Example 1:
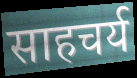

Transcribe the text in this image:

साहचर्य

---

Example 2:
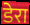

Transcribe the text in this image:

डेरा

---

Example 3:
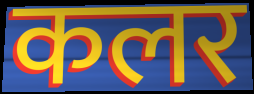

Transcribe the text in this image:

कलर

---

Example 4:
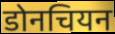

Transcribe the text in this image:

डोनचियन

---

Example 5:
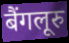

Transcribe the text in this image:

बैंगलूरु